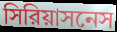
সিরিয়াসনেস